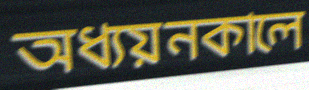
অধ্যয়নকালে